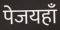
पेजयहाँ